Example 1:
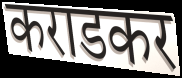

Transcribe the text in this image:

कराडकर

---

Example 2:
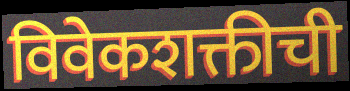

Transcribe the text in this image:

विवेकशक्तीची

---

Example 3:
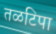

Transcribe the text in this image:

तळटिपा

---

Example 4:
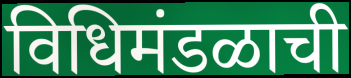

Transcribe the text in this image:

विधिमंडळाची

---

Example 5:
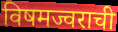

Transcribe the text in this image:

विषमज्वराची